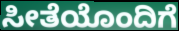
ಸೀತೆಯೊಂದಿಗೆ